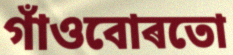
গাঁওবোৰতো